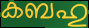
കബഹു